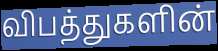
விபத்துகளின்